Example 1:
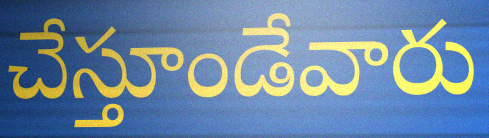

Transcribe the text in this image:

చేస్తూండేవారు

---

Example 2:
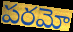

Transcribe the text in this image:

పరమో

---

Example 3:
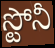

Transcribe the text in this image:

స్టోనీ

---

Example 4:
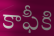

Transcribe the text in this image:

కాఫీకి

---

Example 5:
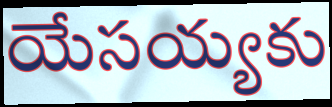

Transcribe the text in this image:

యేసయ్యకు